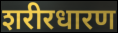
शरीरधारण